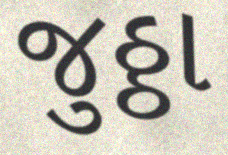
જુઠ્ઠા